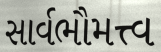
સાર્વભૌમત્ત્વ